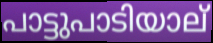
പാട്ടുപാടിയാല്